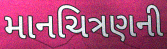
માનચિત્રણની